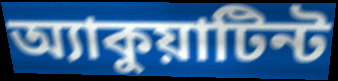
অ্যাকুয়াটিন্ট